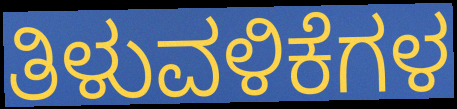
ತಿಳುವಳಿಕೆಗಳ